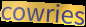
cowries